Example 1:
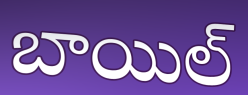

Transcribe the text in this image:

బాయిల్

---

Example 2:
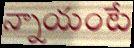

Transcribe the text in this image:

న్నాయంటే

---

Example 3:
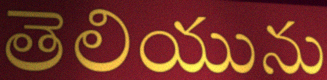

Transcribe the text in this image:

తెలియును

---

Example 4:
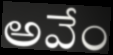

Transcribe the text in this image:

అవేం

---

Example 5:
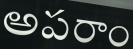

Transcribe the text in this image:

అపరాం